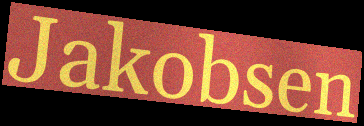
Jakobsen